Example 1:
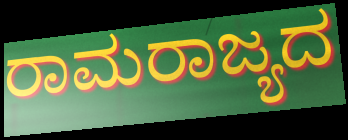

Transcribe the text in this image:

ರಾಮರಾಜ್ಯದ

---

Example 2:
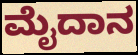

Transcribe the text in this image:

ಮೈದಾನ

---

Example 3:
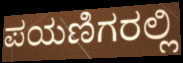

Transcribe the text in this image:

ಪಯಣಿಗರಲ್ಲಿ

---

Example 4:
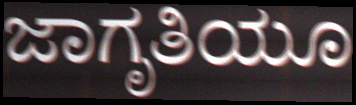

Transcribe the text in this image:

ಜಾಗೃತಿಯೂ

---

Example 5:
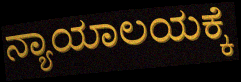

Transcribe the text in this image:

ನ್ಯಾಯಾಲಯಕ್ಕೆ